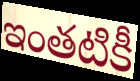
ఇంతటికీ